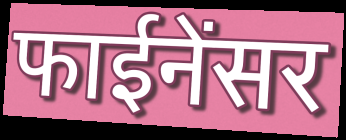
फाईनेंसर